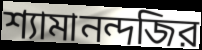
শ্যামানন্দজির